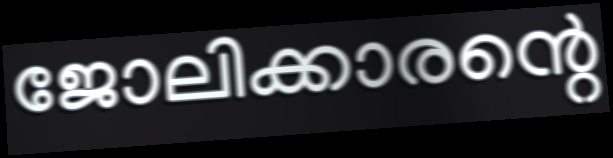
ജോലിക്കാരന്റെ